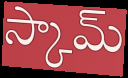
స్కామ్